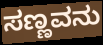
ಸಣ್ಣವನು